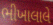
ભીખાલાલે